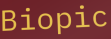
Biopic